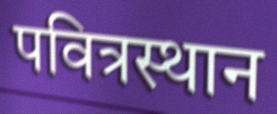
पवित्रस्‍थान